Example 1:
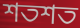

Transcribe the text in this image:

শতশত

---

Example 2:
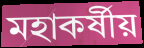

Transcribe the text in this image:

মহাকর্ষীয়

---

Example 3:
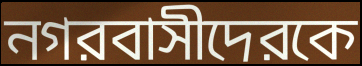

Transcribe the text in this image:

নগরবাসীদেরকে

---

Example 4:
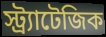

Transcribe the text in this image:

স্ট্র্যাটেজিক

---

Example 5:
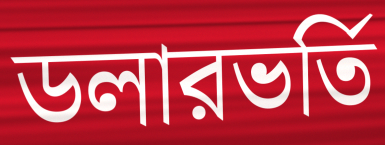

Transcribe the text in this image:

ডলারভর্তি